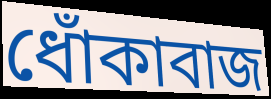
ধোঁকাবাজ